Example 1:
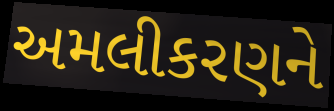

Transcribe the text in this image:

અમલીકરણને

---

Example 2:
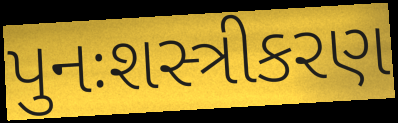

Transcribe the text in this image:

પુનઃશસ્ત્રીકરણ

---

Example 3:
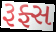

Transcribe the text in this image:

રૂફ્સ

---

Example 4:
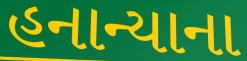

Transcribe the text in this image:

હનાન્યાના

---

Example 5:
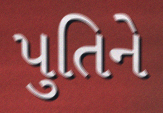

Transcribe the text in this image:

પુતિને